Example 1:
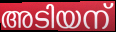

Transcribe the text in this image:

അടിയന്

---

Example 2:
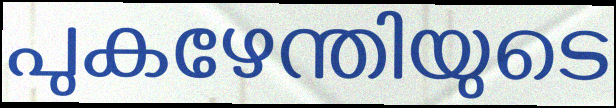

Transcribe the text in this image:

പുകഴേന്തിയുടെ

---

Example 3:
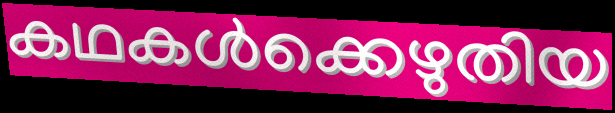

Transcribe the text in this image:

കഥകൾക്കെഴുതിയ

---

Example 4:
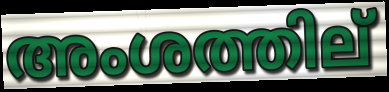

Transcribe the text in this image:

അംശത്തില്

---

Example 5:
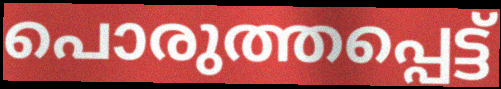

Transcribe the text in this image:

പൊരുത്തപ്പെട്ട്